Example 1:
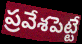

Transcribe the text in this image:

ప్రవేశపెట్టే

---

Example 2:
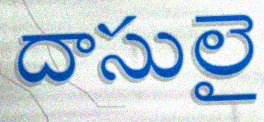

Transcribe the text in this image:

దాసులై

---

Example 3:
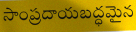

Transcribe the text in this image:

సాంప్రదాయబద్ధమైన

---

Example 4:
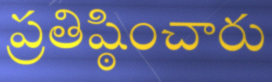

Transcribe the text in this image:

ప్రతిష్ఠించారు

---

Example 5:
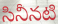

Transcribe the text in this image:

సినీనటి